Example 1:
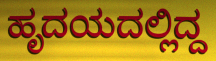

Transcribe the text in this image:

ಹೃದಯದಲ್ಲಿದ್ದ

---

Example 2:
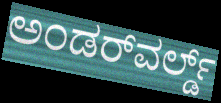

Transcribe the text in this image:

ಅಂಡರ್‌ವರ್ಲ್ಡ್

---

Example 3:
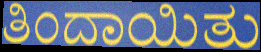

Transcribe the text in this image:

ತಿಂದಾಯಿತು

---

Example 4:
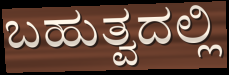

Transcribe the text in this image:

ಬಹುತ್ವದಲ್ಲಿ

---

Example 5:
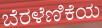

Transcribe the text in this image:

ಬೆರಳೆಣಿಕೆಯ